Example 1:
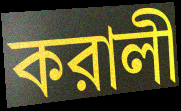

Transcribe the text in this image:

করালী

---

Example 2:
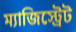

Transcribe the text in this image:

ম্যাজিস্ট্রেট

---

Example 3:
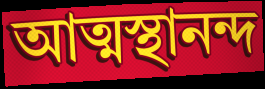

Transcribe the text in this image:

আত্মস্থানন্দ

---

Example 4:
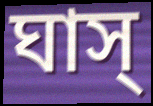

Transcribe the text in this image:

ঘাস্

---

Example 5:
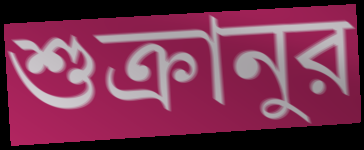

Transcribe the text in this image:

শুক্রানুর